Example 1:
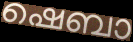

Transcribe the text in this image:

ഷെബാ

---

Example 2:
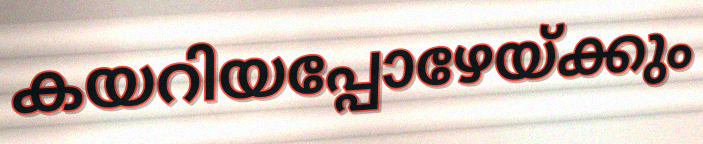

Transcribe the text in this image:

കയറിയപ്പോഴേയ്ക്കും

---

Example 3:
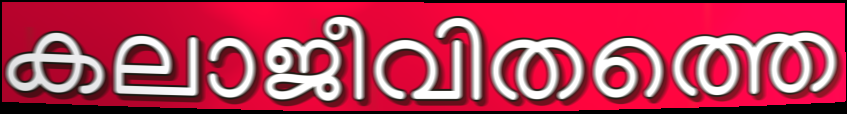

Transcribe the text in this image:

കലാജീവിതത്തെ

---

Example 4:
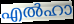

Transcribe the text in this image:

എൽഹാ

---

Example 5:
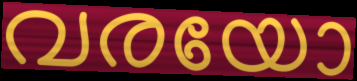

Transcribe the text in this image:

വരയോ